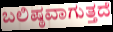
ಬಲಿಷ್ಠವಾಗುತ್ತದೆ